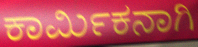
ಕಾರ್ಮಿಕನಾಗಿ